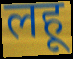
लहू